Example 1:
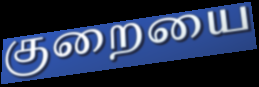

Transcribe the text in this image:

குறையை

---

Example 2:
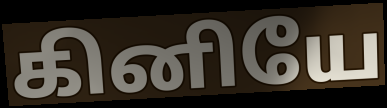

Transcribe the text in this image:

கினியே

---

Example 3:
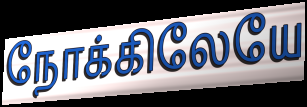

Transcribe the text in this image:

நோக்கிலேயே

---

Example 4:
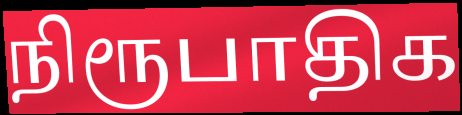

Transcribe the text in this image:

நிரூபாதிக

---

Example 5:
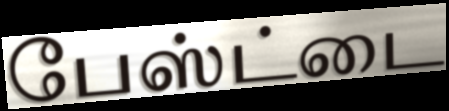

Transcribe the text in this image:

பேஸ்ட்டை